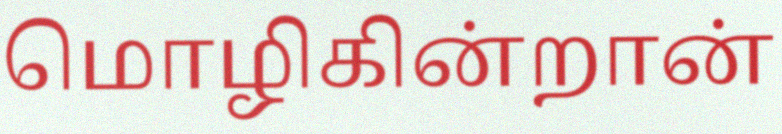
மொழிகின்றான்